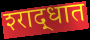
श्राद्धात